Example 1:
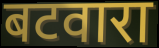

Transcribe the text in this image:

बटवारा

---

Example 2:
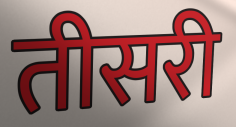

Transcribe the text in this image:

तीसरी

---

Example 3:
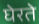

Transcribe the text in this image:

घेरते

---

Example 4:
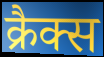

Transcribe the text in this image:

क्रैक्स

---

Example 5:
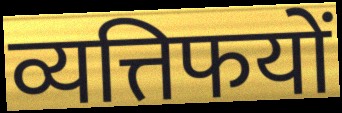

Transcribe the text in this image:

व्यत्तिफयों